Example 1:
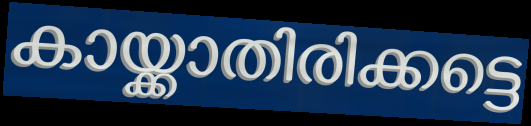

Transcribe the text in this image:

കായ്ക്കാതിരിക്കട്ടെ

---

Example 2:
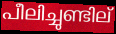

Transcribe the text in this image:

പീലിച്ചുണ്ടില്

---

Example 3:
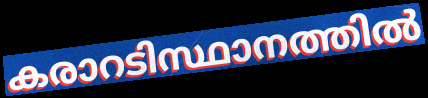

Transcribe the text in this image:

കരാറടിസ്ഥാനത്തിൽ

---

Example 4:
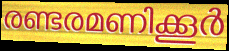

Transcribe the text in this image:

രണ്ടരമണിക്കൂർ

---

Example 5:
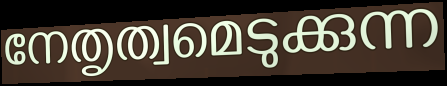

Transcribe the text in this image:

നേതൃത്വമെടുക്കുന്ന